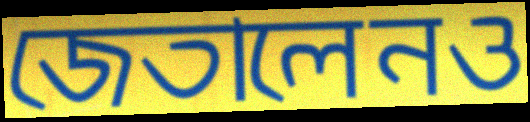
জেতালেনও